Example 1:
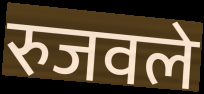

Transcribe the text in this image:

रुजवले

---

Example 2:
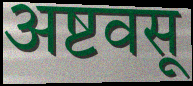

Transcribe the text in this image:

अष्टवसू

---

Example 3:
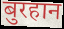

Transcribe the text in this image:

बुरहान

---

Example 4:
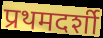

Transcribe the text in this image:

प्रथमदर्शी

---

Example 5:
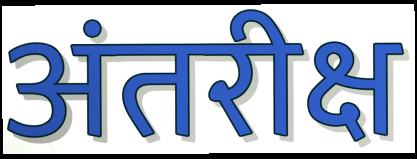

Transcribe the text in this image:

अंतरीक्ष